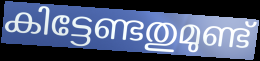
കിട്ടേണ്ടതുമുണ്ട്